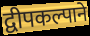
द्वीपकल्पाने